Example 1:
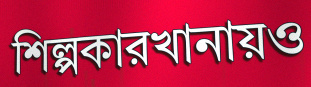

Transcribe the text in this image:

শিল্পকারখানায়ও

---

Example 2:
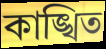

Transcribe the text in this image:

কাঙ্খিত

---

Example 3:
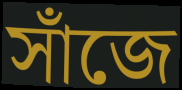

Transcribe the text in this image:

সাঁজে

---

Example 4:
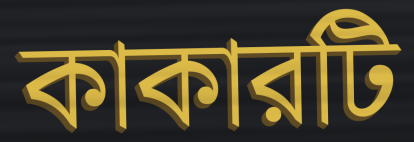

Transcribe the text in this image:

কাকারটি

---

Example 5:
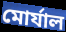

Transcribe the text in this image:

মোর্যাল